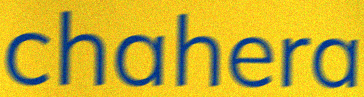
chahera